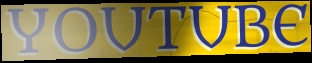
YOUTUBE